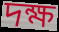
দক্ষ